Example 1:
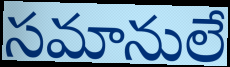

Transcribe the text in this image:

సమానులే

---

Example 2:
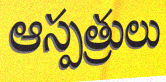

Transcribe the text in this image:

ఆస్పత్రులు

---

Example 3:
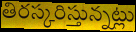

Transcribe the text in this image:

తిరస్కరిస్తున్నట్లు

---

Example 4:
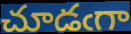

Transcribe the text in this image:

చూడఁగా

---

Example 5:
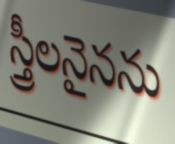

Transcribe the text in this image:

స్త్రీలనైనను